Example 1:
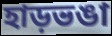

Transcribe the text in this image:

হাড়ভঙা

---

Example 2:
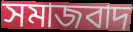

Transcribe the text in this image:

সমাজবাদ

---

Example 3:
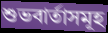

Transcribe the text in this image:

শুভবাৰ্তাসমূহ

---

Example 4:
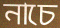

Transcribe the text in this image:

নাচে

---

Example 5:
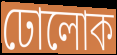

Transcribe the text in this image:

ঢোলোক